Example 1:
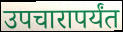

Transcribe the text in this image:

उपचारापर्यंत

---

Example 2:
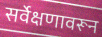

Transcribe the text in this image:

सर्वेक्षणावरून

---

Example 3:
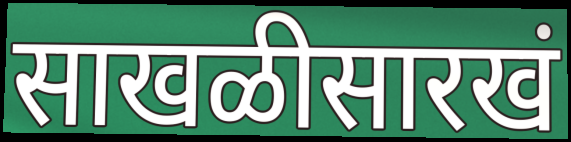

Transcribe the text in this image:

साखळीसारखं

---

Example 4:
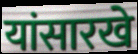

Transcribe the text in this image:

यांसारखे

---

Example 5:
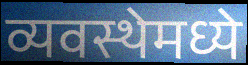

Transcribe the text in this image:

व्यवस्थेमध्ये